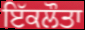
ਇੱਕਲੌਤਾ